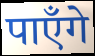
पाएँगे